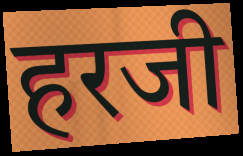
हरजी